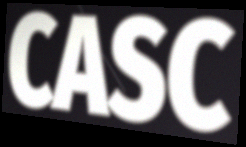
CASC